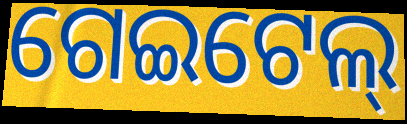
ଗେଇଟେଲ୍